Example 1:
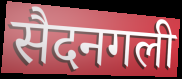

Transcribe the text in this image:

सैदनगली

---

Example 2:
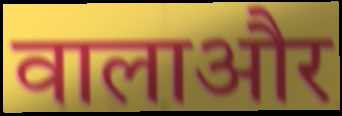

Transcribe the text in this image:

वालाऔर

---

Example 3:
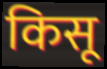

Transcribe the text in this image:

किसू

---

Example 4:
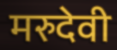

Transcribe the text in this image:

मरुदेवी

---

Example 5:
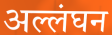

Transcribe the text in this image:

अल्लंघन